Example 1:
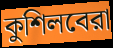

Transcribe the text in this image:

কুশিলবেরা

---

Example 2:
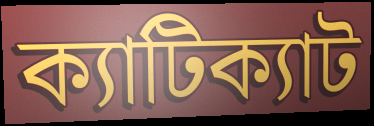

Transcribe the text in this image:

ক্যাটিক্যাট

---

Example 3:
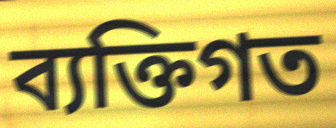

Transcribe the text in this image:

ব্যক্তিগত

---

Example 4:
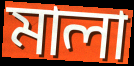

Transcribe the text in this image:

মালা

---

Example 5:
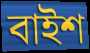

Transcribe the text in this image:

বাইশ